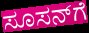
ಸೂಸನ್‌ಗೆ